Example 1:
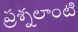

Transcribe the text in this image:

ప్రశ్నలాంటి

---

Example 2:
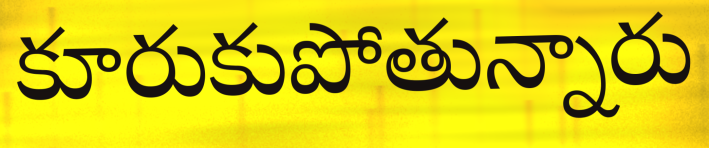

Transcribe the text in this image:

కూరుకుపోతున్నారు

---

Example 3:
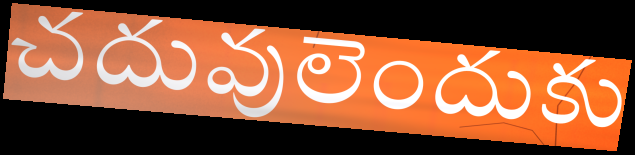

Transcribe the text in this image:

చదువులెందుకు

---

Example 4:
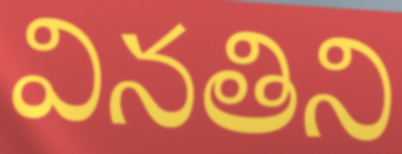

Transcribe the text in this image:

వినతిని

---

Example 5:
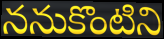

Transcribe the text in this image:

ననుకొంటిని